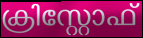
ക്രിസ്റ്റോഫ്